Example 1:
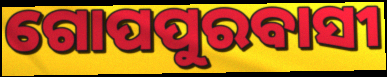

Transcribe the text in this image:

ଗୋପପୁରବାସୀ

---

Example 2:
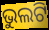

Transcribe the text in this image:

ଭୁଲଟି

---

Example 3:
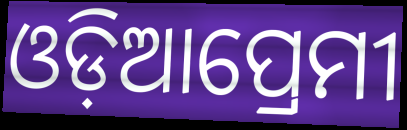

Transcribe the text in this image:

ଓଡ଼ିଆପ୍ରେମୀ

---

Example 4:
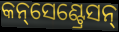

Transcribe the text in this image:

କନ୍‌ସେଣ୍ଟ୍ରେସନ୍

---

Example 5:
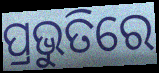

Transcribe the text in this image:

ପ୍ରଭୁତିରେ